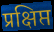
प्रक्षिप्त